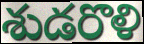
శుడరొళి